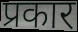
प्रकार